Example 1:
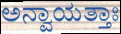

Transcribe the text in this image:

ಅನ್ವಾಯತ್ತಾಃ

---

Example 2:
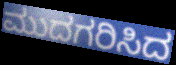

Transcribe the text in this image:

ಮುದಗರಿಸಿದ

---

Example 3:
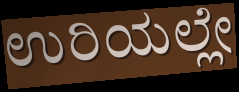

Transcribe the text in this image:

ಉರಿಯಲ್ಲೇ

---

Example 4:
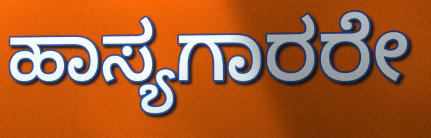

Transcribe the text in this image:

ಹಾಸ್ಯಗಾರರೇ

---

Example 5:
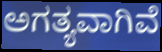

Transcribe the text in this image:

ಅಗತ್ಯವಾಗಿವೆ